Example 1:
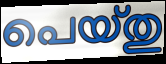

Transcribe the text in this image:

പെയ്തു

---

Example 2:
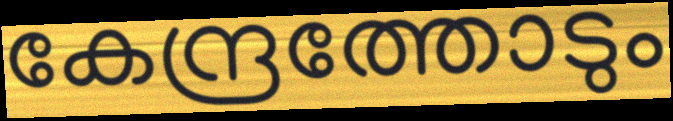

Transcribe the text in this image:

കേന്ദ്രത്തോടും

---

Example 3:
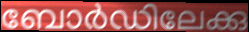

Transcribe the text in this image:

ബോർഡിലേക്കു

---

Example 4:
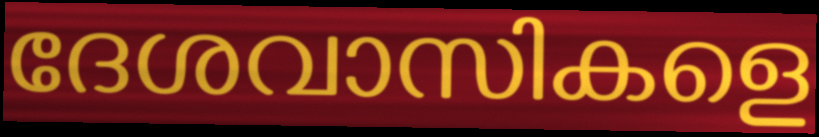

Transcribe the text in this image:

ദേശവാസികളെ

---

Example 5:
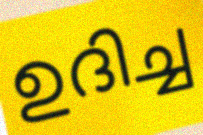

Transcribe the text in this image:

ഉദിച്ച